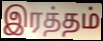
இரத்தம்